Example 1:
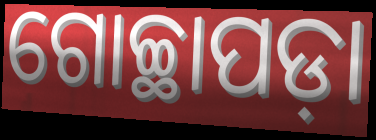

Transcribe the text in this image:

ଗୋଚ୍ଛାପଡ଼ା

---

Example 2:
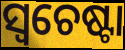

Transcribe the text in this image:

ସ୍ଵଚେଷ୍ଟା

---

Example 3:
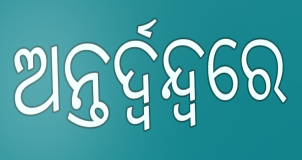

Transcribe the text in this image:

ଅନ୍ତର୍ଦ୍ୱନ୍ଦ୍ୱରେ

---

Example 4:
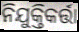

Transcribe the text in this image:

ନିଯୁକ୍ତିକର୍ତ୍ତା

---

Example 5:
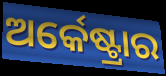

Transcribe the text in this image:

ଅର୍କେଷ୍ଟ୍ରାର